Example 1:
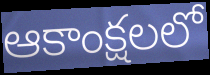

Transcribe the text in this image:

ఆకాంక్షలలో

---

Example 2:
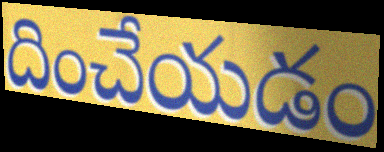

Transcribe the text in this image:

దించేయడం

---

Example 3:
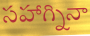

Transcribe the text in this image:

సహాగ్నినా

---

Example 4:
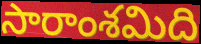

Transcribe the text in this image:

సారాంశమిది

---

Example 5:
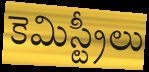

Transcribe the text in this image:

కెమిస్ట్రీలు